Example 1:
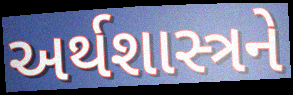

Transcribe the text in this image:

અર્થશાસ્ત્રને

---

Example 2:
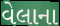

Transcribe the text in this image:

વેલાના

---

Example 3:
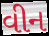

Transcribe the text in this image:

વીન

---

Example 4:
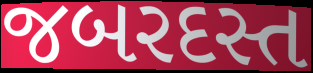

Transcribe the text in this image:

જબરદસ્ત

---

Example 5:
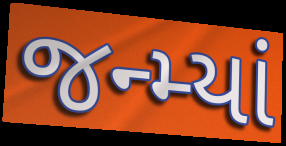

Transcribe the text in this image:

જન્મ્યાં